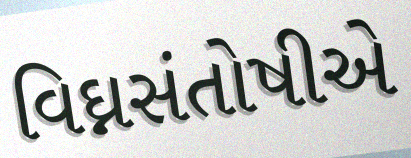
વિઘ્નસંતોષીએ